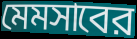
মেমসাবের